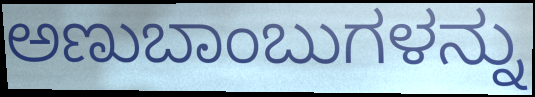
ಅಣುಬಾಂಬುಗಳನ್ನು